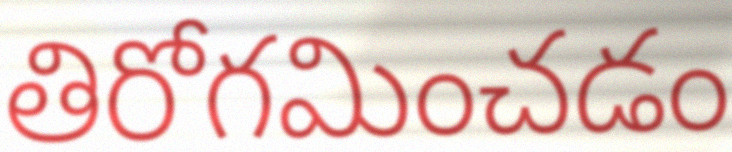
తిరోగమించడం